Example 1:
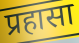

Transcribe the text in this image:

प्रहासा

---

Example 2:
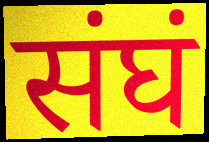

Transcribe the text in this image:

संघं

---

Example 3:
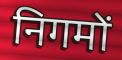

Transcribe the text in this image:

निगमों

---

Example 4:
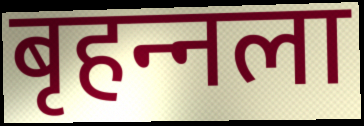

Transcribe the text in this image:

बृहन्नला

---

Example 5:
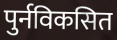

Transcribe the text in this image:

पुर्नविकसित